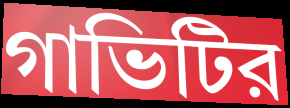
গাভিটির